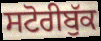
ਸਟੋਰੀਬੁੱਕ